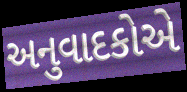
અનુવાદકોએ